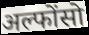
अल्फोंसो